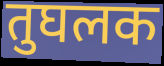
तुघलक